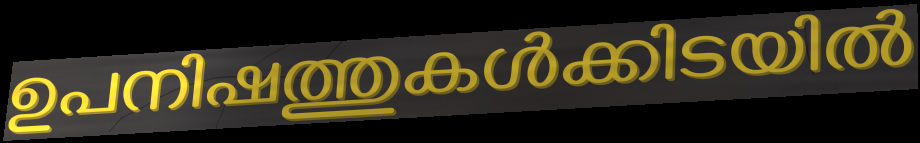
ഉപനിഷത്തുകൾക്കിടയിൽ